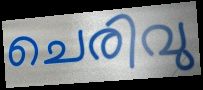
ചെരിവു